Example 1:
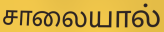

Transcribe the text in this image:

சாலையால்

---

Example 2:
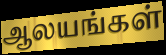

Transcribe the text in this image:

ஆலயங்கள்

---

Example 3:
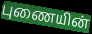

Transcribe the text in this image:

புணையின்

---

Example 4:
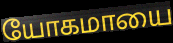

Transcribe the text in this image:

யோகமாயை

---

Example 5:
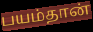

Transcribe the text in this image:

பயம்தான்